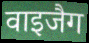
वाइजैग